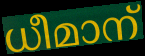
ധീമാന്